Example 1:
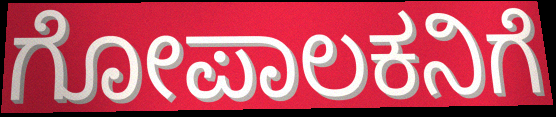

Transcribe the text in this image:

ಗೋಪಾಲಕನಿಗೆ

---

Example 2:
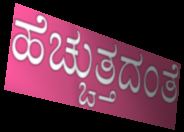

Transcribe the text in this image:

ಹೆಚ್ಚುತ್ತದಂತೆ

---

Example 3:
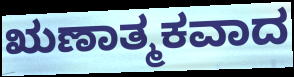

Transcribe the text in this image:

ಋಣಾತ್ಮಕವಾದ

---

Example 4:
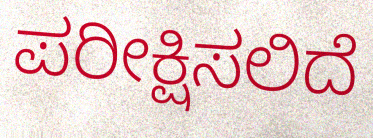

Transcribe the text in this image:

ಪರೀಕ್ಷಿಸಲಿದೆ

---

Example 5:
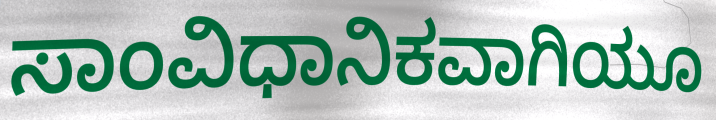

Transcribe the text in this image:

ಸಾಂವಿಧಾನಿಕವಾಗಿಯೂ